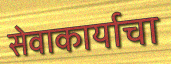
सेवाकार्याचा